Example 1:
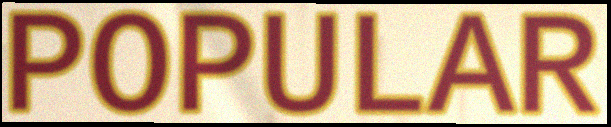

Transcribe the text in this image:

POPULAR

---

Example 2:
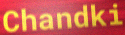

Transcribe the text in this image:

Chandki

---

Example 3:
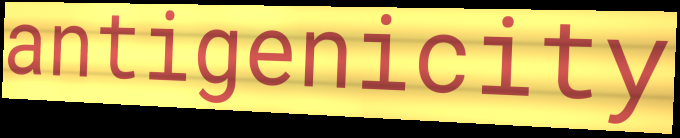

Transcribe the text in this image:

antigenicity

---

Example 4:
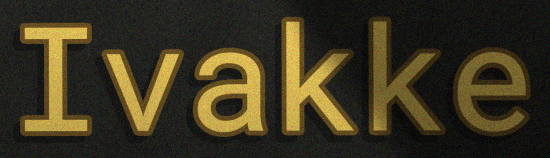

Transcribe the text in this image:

Ivakke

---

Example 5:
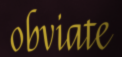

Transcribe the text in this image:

obviate